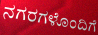
ನಗರಗಳೊಂದಿಗೆ